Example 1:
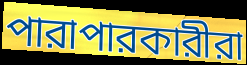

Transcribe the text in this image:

পারাপারকারীরা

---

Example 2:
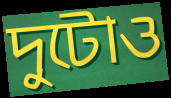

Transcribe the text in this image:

দুটোও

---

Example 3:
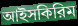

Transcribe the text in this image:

আইসকিরিম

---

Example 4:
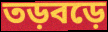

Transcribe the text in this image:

তড়বড়ে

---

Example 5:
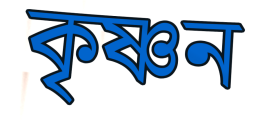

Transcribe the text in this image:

কৃষ্ণন